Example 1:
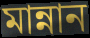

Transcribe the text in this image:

মান্নান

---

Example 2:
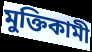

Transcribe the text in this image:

মুক্তিকামী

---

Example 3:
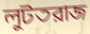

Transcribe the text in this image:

লুটতরাজ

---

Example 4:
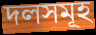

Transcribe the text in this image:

দলসমূহ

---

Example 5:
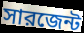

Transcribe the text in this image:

সারজেন্ট